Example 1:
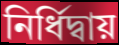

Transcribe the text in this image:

নির্ধিদ্বায়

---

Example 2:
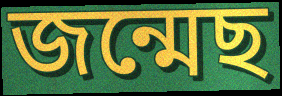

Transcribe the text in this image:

জন্মেছ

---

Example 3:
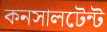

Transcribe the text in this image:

কনসালটেন্ট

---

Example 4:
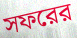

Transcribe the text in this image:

সফরের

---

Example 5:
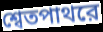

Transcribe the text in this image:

শ্বেতপাথরে